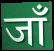
जाँ